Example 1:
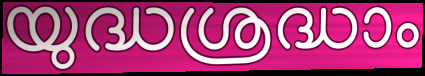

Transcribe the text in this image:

യുദ്ധശ്രദ്ധാം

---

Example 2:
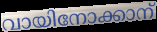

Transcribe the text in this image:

വായിനോക്കാന്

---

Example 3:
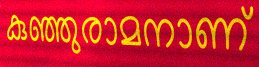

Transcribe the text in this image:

കുഞ്ഞുരാമനാണ്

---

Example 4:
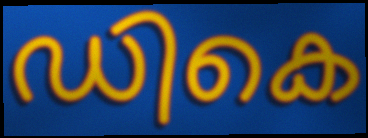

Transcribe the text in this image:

ഡികെ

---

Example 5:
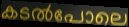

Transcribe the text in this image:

കടൽപോലെ